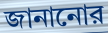
জানানোর